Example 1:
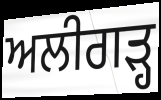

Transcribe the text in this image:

ਅਲੀਗੜ੍ਹ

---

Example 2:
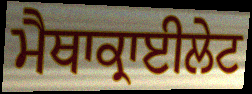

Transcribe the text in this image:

ਮੈਥਾਕ੍ਰਾਈਲੇਟ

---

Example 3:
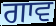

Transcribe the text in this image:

ਗਾਵ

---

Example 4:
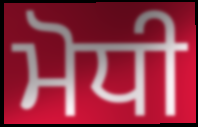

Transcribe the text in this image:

ਮੋਧੀ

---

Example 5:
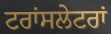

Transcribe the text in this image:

ਟਰਾਂਸਲੇਟਰਾਂ